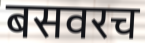
बसवरच